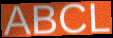
ABCL